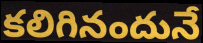
కలిగినందునే